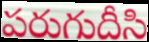
పరుగుదీసి